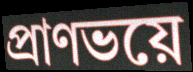
প্রাণভয়ে